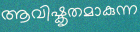
ആവിഷ്കൃതമാകുന്ന